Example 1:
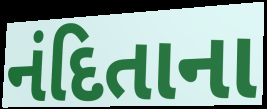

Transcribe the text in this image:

નંદિતાના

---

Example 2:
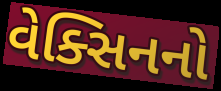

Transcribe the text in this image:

વેક્સિનનો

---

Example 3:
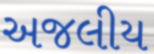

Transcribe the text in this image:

અજલીય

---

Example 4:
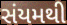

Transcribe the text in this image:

સંયમથી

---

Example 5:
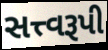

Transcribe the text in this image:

સત્ત્વરૂપી